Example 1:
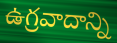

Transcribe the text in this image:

ఉగ్రవాదాన్ని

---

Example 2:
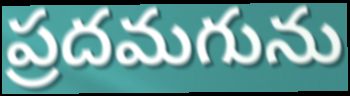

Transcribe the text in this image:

ప్రదమగును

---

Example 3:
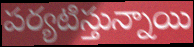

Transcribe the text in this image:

పర్యటిస్తున్నాయి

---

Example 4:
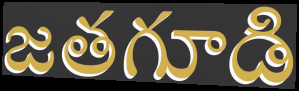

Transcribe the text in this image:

జతగూడి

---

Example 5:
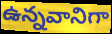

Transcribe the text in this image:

ఉన్నవానిగా